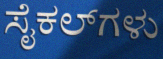
ಸೈಕಲ್‌ಗಳು